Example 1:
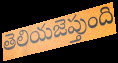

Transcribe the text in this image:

తెలియజెప్తుంది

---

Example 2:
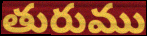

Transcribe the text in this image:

తురుము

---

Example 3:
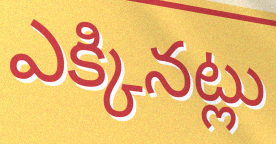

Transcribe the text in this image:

ఎక్కినట్లు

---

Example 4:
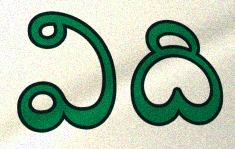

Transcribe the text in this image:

విది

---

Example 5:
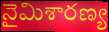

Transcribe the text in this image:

నైమిశారణ్య